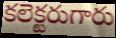
కలెక్టరుగారు